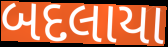
બદલાયા